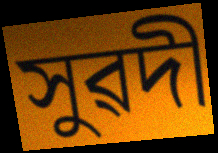
সুৱদী